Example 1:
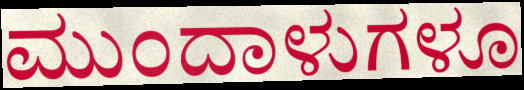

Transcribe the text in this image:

ಮುಂದಾಳುಗಳೂ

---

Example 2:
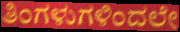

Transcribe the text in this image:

ತಿಂಗಳುಗಳಿಂದಲೇ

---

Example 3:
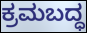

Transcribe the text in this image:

ಕ್ರಮಬದ್ಧ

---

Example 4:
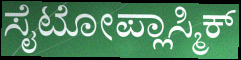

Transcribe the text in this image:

ಸೈಟೋಪ್ಲಾಸ್ಮಿಕ್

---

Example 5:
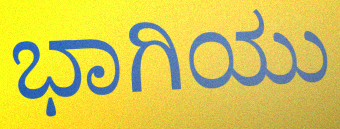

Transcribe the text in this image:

ಭಾಗಿಯು